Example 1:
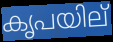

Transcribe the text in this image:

കൃപയില്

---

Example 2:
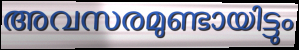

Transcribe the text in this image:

അവസരമുണ്ടായിട്ടും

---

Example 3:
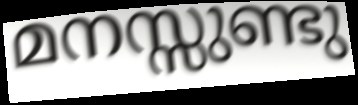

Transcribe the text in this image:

മനസ്സുണ്ടു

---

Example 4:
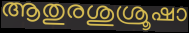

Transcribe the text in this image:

ആതുരശുശ്രൂഷാ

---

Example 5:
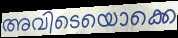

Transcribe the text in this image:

അവിടെയൊക്കെ